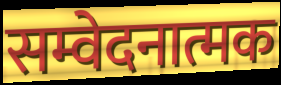
सम्वेदनात्मक